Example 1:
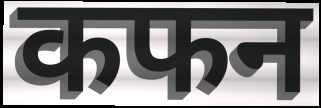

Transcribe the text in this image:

कफन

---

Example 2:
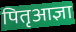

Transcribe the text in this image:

पितृआज्ञा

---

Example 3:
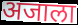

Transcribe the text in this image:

अजाला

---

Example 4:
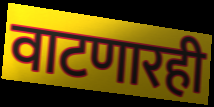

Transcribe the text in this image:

वाटणारही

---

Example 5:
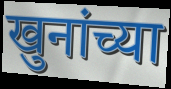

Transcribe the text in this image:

खुनांच्या